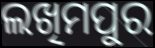
ଲଖିମପୁର